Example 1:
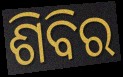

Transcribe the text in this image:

ଶିବିର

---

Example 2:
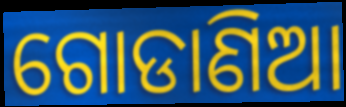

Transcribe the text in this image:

ଗୋଡାଣିଆ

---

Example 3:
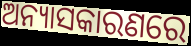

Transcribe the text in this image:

ଅନ୍ୟାସକାରଣରେ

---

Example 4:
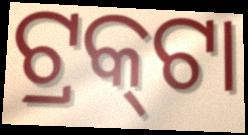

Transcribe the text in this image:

ଟ୍ରକ୍‌ଟା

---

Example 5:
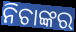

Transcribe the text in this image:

ନିଚାଙ୍କର